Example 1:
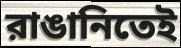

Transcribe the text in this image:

রাঙানিতেই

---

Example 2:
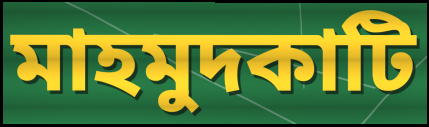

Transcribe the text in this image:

মাহমুদকাটি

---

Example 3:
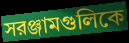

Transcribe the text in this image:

সরঞ্জামগুলিকে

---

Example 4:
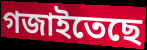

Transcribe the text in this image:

গজাইতেছে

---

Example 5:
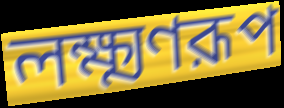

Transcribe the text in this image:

লক্ষ্মণরূপ